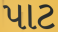
પાટ